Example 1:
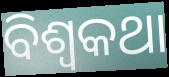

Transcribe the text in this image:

ବିଶ୍ୱକଥା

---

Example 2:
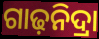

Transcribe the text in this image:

ଗାଢ଼ନିଦ୍ରା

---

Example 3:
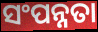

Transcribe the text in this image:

ସଂପନ୍ନତା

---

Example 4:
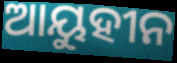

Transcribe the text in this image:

ଆୟୁହୀନ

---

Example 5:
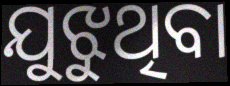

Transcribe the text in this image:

ଯୁଝୁଥିବା